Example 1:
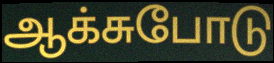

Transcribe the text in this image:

ஆக்சுபோடு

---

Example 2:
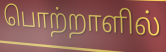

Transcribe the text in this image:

பொற்றாளில்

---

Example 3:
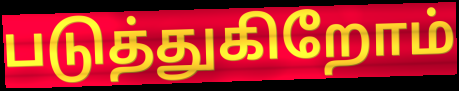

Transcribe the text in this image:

படுத்துகிறோம்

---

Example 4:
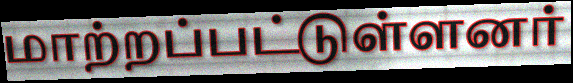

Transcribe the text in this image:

மாற்றப்பட்டுள்ளனர்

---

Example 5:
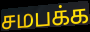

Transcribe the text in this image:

சமபக்க